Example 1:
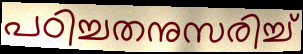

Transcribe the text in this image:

പഠിച്ചതനുസരിച്ച്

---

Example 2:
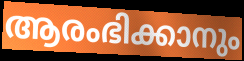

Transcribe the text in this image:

ആരംഭിക്കാനും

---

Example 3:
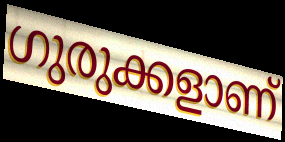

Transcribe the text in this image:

ഗുരുക്കളാണ്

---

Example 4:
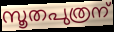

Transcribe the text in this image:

സൂതപുത്രന്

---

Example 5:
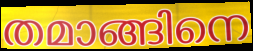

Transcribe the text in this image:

തമാങ്ങിനെ